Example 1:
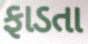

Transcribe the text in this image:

ફાડતા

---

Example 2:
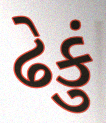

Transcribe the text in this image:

ઢેકું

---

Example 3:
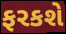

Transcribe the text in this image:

ફરકશે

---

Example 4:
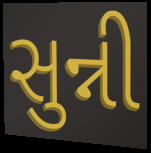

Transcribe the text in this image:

સુન્ની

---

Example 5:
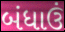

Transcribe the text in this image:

બંધાઉં